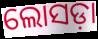
ଲୋସଡ଼ା